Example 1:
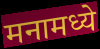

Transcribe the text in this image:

मनामध्ये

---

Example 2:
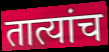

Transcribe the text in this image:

तात्यांच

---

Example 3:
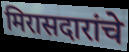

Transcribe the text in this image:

मिरासदारांचे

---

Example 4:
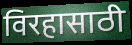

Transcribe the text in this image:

विरहासाठी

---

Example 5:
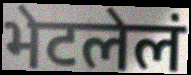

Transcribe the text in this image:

भेटलेलं